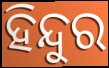
ହିନ୍ଦୁର